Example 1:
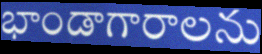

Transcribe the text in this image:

భాండాగారాలను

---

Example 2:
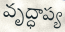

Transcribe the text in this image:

వృద్ధాప్య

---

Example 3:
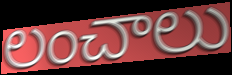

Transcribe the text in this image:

లంచాలు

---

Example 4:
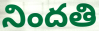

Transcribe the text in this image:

నిందతి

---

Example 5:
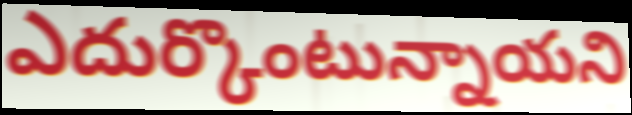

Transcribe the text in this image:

ఎదుర్కొంటున్నాయని